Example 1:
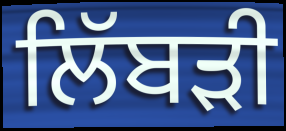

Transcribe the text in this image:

ਲਿੱਬੜੀ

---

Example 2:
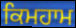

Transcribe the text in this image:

ਕਿਮਹਾਮ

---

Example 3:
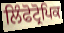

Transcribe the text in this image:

ਲਿੰਫੋਟ੍ਰੋਪਿਕ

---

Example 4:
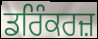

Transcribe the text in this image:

ਡਰਿੰਕਰਜ਼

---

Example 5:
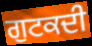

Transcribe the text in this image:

ਗੁਟਕਦੀ